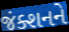
જંક્શનને